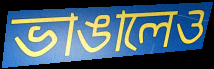
ভাঙালেও